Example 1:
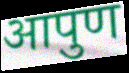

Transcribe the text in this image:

आपुण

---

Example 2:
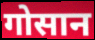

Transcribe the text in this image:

गोसान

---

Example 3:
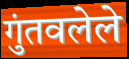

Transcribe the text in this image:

गुंतवलेले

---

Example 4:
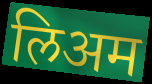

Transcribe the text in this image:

लिअम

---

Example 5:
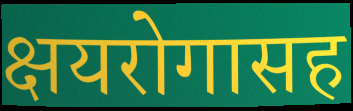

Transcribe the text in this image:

क्षयरोगासह